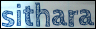
sithara